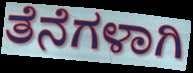
ತೆನೆಗಳಾಗಿ